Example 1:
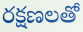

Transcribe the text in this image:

రక్షణలతో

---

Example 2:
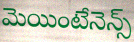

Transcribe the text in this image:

మెయింటేనెన్స్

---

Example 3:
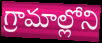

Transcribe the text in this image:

గ్రామాల్లోని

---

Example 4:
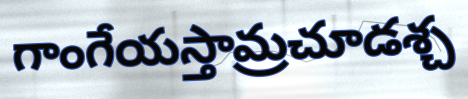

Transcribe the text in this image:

గాంగేయస్తామ్రచూడశ్చ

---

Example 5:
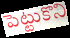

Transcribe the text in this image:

పెట్టుకొని